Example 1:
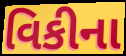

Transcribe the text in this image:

વિકીના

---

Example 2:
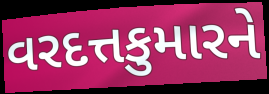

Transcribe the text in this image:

વરદત્તકુમારને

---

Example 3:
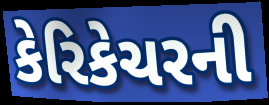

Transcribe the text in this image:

કેરિકેચરની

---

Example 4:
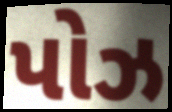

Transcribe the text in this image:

પોઝ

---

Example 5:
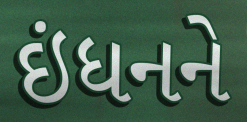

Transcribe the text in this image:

ઇંધનને